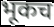
भूकच